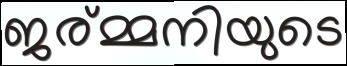
ജര്മ്മനിയുടെ